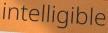
intelligible